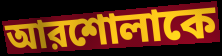
আরশোলাকে